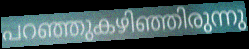
പറഞ്ഞുകഴിഞ്ഞിരുന്നു